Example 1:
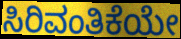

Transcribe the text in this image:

ಸಿರಿವಂತಿಕೆಯೇ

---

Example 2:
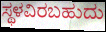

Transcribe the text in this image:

ಸ್ಥಳವಿರಬಹುದು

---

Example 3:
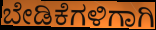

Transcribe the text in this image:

ಬೇಡಿಕೆಗಳಿಗಾಗಿ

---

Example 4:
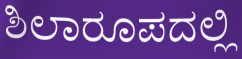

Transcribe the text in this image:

ಶಿಲಾರೂಪದಲ್ಲಿ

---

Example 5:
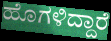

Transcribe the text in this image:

ಹೊಗಳಿದ್ದಾರೆ